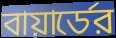
বায়ার্ডের